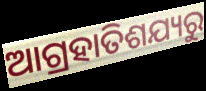
ଆଗ୍ରହାତିଶଯ୍ୟରୁ